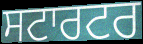
ਸਟਾਰਟਰ